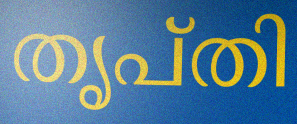
തൃപ്തി